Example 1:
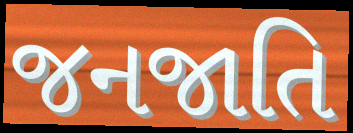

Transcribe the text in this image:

જનજાતિ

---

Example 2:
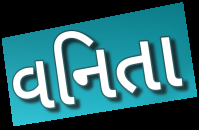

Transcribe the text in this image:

વનિતા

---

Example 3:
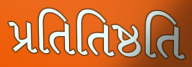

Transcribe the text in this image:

પ્રતિતિષ્ઠતિ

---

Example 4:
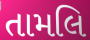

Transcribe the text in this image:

તામલિ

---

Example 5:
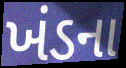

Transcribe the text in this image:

ખંડના